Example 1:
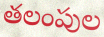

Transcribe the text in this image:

తలంపుల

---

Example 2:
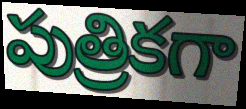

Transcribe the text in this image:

పుత్రికగా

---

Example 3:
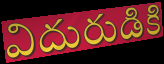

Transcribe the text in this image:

విదురుడికి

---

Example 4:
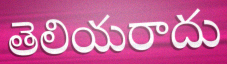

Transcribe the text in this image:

తెలియరాదు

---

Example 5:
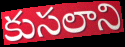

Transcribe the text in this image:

కుసలాని